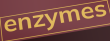
enzymes